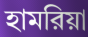
হামরিয়া